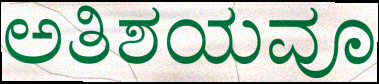
ಅತಿಶಯವೂ